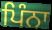
ਪਿੰਨਾ